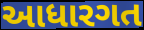
આધારગત